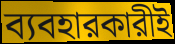
ব্যবহারকারীই